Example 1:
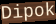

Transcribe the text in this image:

Dipok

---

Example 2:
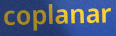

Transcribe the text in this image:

coplanar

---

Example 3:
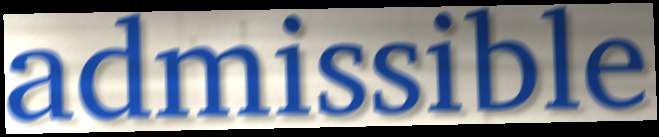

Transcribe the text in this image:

admissible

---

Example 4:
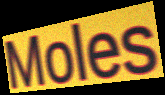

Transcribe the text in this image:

Moles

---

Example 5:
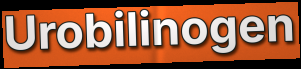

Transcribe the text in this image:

Urobilinogen